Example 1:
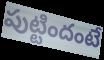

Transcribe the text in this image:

పుట్టిందంటే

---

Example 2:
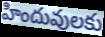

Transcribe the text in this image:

హిందువులకు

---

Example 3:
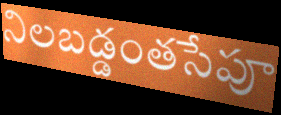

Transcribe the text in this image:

నిలబడ్డంతసేపూ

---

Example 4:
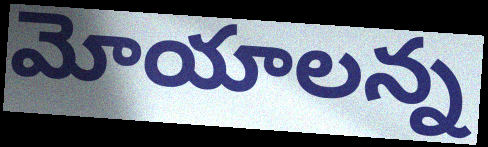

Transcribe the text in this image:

మోయాలన్న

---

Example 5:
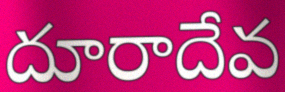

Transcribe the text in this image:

దూరాదేవ